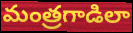
మంత్రగాడిలా